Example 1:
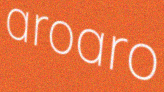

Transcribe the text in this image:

aroaro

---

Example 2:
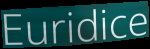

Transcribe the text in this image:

Euridice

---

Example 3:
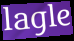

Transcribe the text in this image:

lagle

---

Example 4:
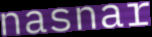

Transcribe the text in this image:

nasnar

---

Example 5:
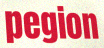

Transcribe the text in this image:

pegion